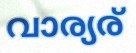
വാര്യര്